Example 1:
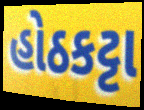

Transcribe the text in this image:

હોઠકટ્ટા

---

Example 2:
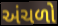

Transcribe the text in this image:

અંચળો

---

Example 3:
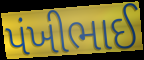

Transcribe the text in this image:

પંખીભાઈ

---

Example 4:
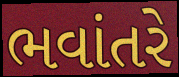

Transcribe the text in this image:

ભવાંતરે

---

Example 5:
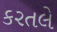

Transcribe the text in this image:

કરતલે